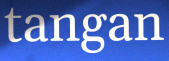
tangan